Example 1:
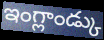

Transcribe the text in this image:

ఇంగ్లాండ్కు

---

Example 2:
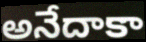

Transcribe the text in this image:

అనేదాకా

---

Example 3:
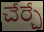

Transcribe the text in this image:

చేర్చే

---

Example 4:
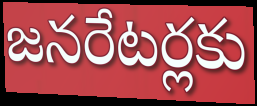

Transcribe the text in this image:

జనరేటర్లకు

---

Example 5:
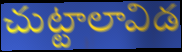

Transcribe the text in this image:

చుట్టాలావిడ